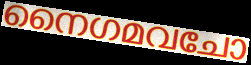
നൈഗമവചോ